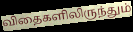
விதைகளிலிருந்தும்